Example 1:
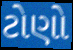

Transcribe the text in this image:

ટોણો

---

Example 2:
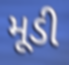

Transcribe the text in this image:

મૂડી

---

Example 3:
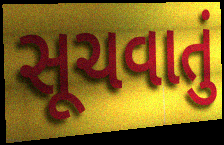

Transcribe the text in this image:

સૂચવાતું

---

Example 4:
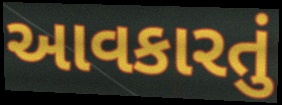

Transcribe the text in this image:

આવકારતું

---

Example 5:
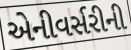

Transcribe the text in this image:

એનીવર્સરીની